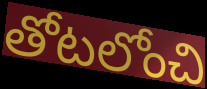
తోటలోంచి